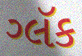
ગ્લૅક